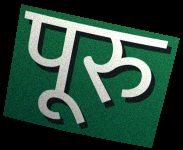
पूरु